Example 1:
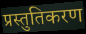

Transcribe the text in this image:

प्रस्तुतिकरण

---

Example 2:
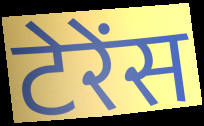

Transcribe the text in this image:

टेरेंस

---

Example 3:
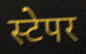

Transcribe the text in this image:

स्टेपर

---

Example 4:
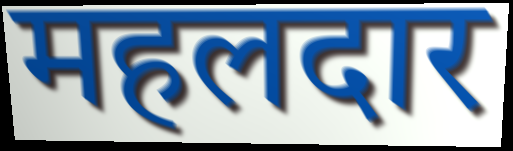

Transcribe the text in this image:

महलदार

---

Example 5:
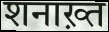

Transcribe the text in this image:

शनाख़्त